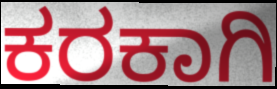
ಕರಕಾಗಿ